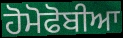
ਹੋਮੋਫੋਬੀਆ